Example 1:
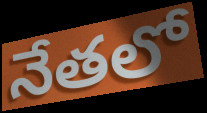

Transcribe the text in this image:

నేతలో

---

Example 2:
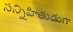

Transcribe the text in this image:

సన్నిహితుడుగా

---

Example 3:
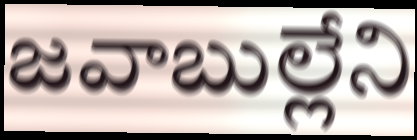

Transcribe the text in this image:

జవాబుల్లేని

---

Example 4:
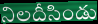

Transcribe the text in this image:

నిలదీసిండు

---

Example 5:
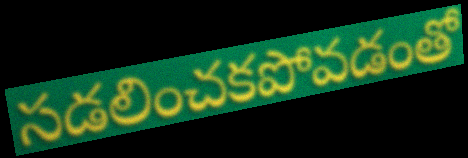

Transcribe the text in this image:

సడలించకపోవడంతో